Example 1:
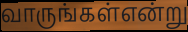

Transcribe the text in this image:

வாருங்கள்என்று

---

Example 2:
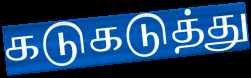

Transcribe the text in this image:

கடுகடுத்து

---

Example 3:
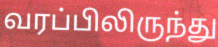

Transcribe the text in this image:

வரப்பிலிருந்து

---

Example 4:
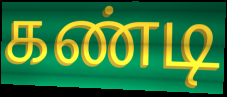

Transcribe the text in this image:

கண்டி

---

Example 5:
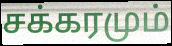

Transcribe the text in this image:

சக்கரமும்